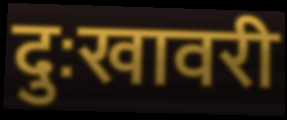
दुःखावरी